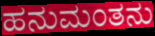
ಹನುಮಂತನು